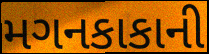
મગનકાકાની